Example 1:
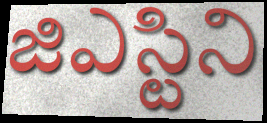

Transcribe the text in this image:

జిఎస్టిని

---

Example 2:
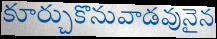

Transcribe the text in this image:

కూర్చుకొనువాడవునైన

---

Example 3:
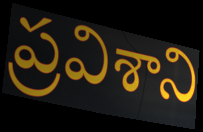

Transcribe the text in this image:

ప్రవిశాని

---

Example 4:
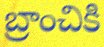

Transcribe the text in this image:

బ్రాంచికి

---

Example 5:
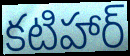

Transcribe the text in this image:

కటిహార్